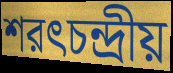
শরৎচন্দ্রীয়